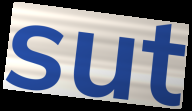
sut